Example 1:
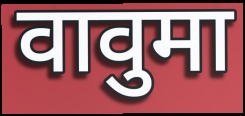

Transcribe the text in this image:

वावुमा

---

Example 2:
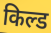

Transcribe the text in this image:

किल्ड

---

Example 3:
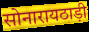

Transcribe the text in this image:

सोनारायठाड़ी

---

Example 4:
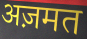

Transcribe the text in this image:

अज़मत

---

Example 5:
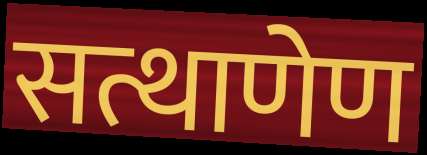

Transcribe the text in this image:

सत्थाणेण